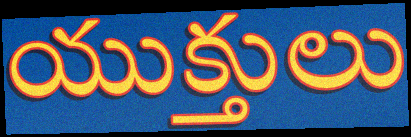
యుక్తులు